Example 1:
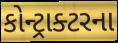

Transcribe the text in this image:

કોન્ટ્રાક્ટરના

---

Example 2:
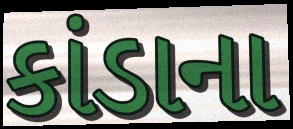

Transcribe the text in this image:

કાંડાના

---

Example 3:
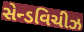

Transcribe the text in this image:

સેન્ડવિચીઝ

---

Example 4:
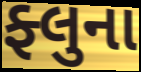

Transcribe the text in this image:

ફ્લુના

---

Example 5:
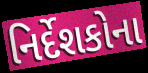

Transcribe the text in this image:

નિર્દેશકોના